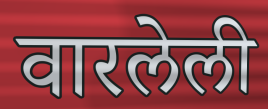
वारलेली